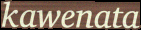
kawenata